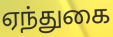
ஏந்துகை